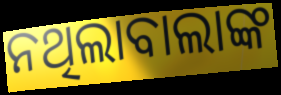
ନଥିଲାବାଲାଙ୍କ